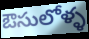
ఔసులోళ్ళ